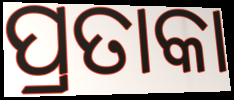
ପ୍ରତାକା